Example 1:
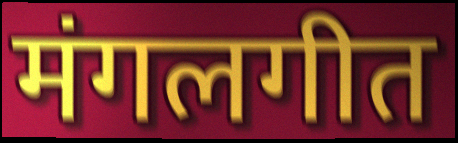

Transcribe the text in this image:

मंगलगीत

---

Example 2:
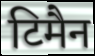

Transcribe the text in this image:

टिमैन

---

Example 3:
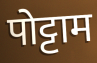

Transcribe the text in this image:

पोट्टाम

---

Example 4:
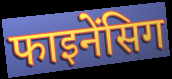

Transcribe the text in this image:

फाइनेंसिग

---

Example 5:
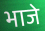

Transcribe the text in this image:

भाजे